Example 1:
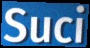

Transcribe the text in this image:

Suci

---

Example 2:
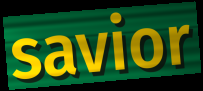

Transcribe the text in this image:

savior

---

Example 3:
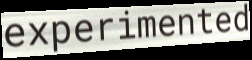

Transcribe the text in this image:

experimented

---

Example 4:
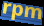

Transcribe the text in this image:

rpm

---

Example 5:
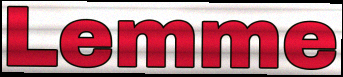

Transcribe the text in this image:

Lemme